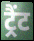
ट्रैंट